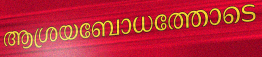
ആശ്രയബോധത്തോടെ